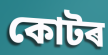
কোটৰ